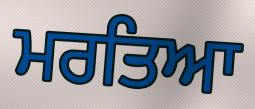
ਮਰਤਿਆ